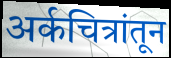
अर्कचित्रांतून